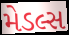
મેડલ્સ